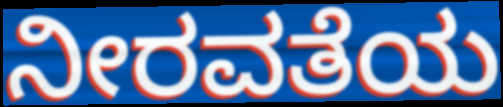
ನೀರವತೆಯ